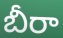
బీరా